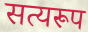
सत्यरूप